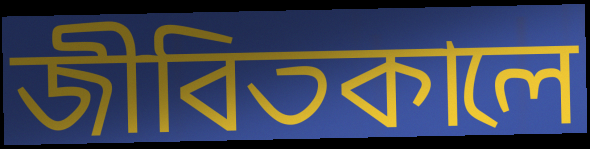
জীবিতকালে